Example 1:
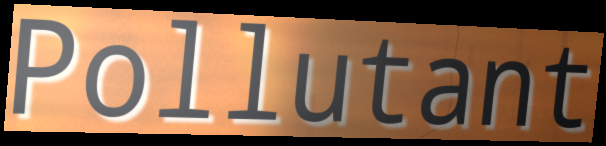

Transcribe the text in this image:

Pollutant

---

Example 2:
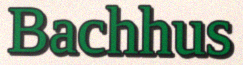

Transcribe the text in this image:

Bachhus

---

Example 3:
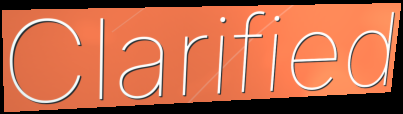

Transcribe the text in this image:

Clarified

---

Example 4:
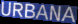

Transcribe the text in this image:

URBANA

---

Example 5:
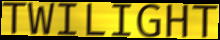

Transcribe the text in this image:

TWILIGHT